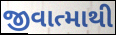
જીવાત્માથી